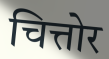
चित्तोर